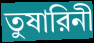
তুষারিনী